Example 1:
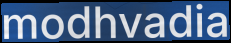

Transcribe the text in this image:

modhvadia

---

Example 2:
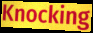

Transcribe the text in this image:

Knocking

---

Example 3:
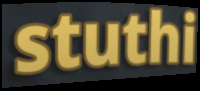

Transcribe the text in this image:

stuthi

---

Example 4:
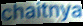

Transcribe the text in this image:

chaitnya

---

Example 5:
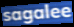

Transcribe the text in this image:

sagalee